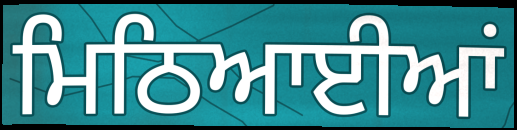
ਮਿਠਿਆਈਆਂ